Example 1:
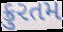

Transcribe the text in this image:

ક્રુરતમ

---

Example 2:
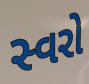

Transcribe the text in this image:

સ્વરો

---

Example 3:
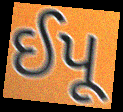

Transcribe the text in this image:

ઈપૂ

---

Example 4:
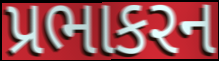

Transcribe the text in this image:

પ્રભાકરન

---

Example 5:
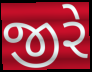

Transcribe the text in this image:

જીરે